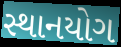
સ્થાનયોગ